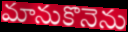
మానుకొనెను